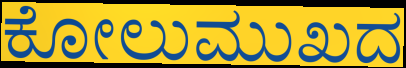
ಕೋಲುಮುಖದ